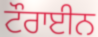
ਟੌਰਾਈਨ